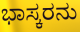
ಭಾಸ್ಕರನು